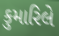
કુમારિલે